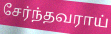
சேர்ந்தவராய்